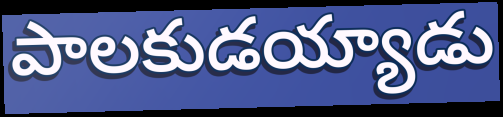
పాలకుడయ్యాడు